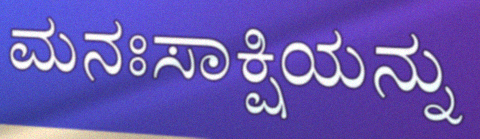
ಮನಃಸಾಕ್ಷಿಯನ್ನು